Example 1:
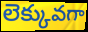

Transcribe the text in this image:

లెక్కువగా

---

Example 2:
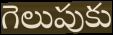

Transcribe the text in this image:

గెలుపుకు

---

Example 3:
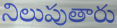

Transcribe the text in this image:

నిలుపుతారు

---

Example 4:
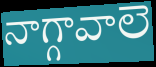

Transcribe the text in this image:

నాగ్గావాలె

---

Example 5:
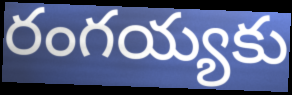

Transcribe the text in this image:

రంగయ్యకు